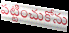
పట్టించుకోను